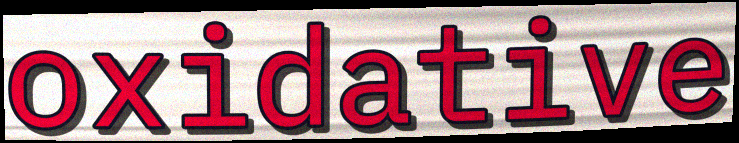
oxidative